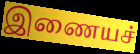
இணையச்